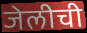
जेलीची